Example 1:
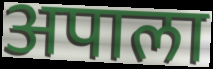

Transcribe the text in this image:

अपाला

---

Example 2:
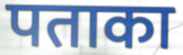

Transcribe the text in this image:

पताका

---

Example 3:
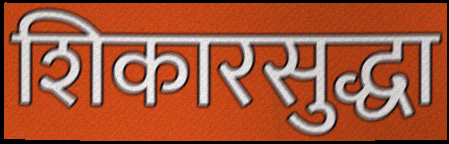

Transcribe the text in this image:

शिकारसुद्धा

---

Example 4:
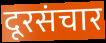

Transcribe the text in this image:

दूरसंचार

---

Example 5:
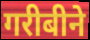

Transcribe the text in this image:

गरीबीने